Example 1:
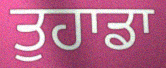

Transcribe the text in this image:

ਤੁਹਾਡਾ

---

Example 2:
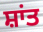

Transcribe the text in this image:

ਸ਼ਾਂਤ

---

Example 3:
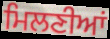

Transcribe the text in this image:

ਮਿਲਣੀਆਂ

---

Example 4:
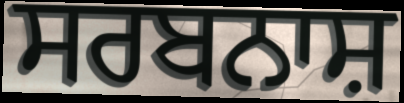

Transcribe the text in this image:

ਸਰਬਨਾਸ਼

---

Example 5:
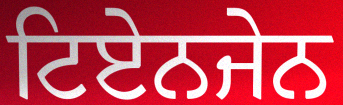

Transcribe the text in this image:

ਟਿਏਨਜੇਨ